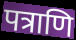
पत्राणि